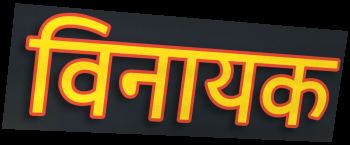
विनायक